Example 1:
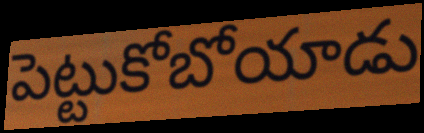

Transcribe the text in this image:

పెట్టుకోబోయాడు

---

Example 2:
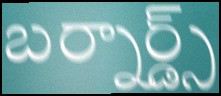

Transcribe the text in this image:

బర్నార్డ్స్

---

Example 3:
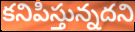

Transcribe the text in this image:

కనిపిస్తున్నదని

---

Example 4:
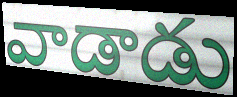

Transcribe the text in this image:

వాడాడు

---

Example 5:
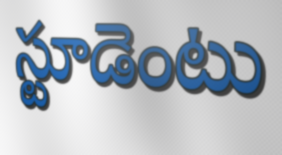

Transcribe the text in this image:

స్టూడెంటు